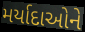
મર્યાદાઓને